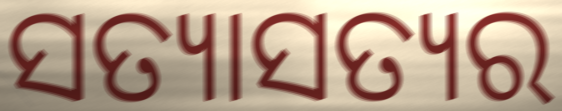
ସତ୍ୟାସତ୍ୟର